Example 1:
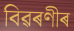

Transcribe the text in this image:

বিৱৰণীৰ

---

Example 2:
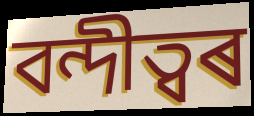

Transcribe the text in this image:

বন্দীত্বৰ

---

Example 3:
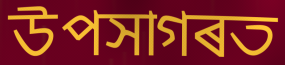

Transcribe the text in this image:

উপসাগৰত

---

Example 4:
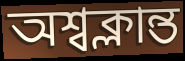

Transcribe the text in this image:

অশ্বক্লান্ত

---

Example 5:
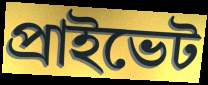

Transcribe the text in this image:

প্ৰাইভেট